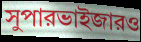
সুপারভাইজারও